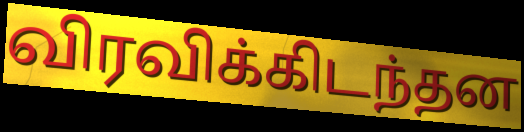
விரவிக்கிடந்தன